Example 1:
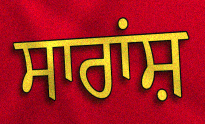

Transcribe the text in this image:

ਸਾਰਾਂਸ਼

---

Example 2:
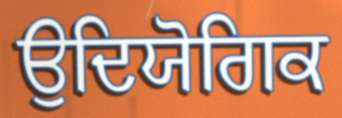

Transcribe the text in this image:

ਉਦਿਯੋਗਿਕ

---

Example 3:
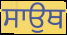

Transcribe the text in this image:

ਸਾਉਥ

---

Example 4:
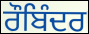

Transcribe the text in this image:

ਰੌਬਿੰਦਰ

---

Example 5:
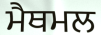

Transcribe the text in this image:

ਮੈਥਮਲ